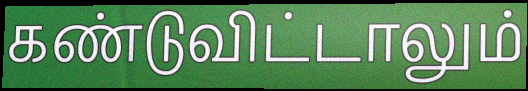
கண்டுவிட்டாலும்